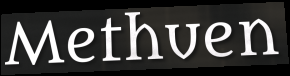
Methuen